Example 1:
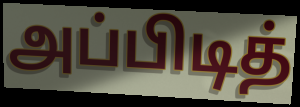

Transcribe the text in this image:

அப்பிடித்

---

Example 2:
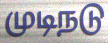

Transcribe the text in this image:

முடிநடு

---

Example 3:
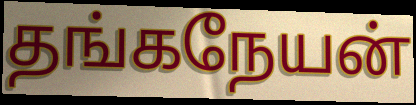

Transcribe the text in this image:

தங்கநேயன்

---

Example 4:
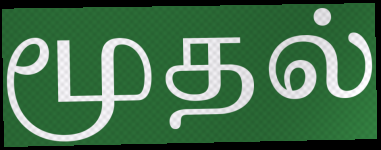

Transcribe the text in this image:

மூதல்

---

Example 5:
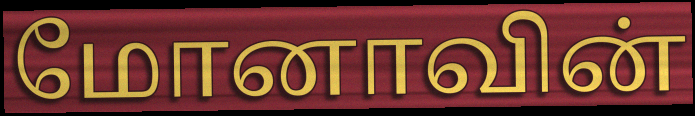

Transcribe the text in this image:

மோனாவின்